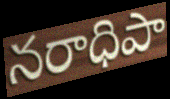
నరాధిపా